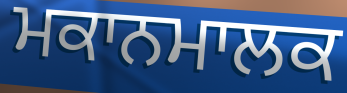
ਮਕਾਨਮਾਲਕ